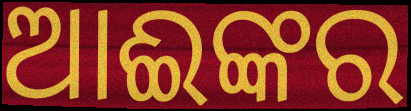
ଆଈଙ୍କର